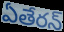
ఏతేరన్